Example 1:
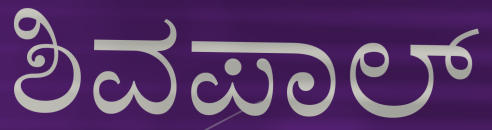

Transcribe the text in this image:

ಶಿವಪಾಲ್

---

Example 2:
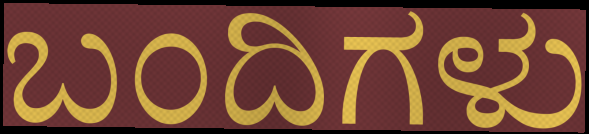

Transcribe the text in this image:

ಬಂದಿಗಳು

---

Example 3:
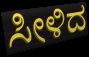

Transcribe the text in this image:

ಸೀಳಿದ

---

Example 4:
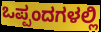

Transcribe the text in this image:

ಒಪ್ಪಂದಗಳಲ್ಲಿ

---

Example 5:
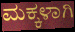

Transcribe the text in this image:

ಮಕ್ಕಳಾಗಿ